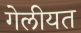
गेलीयत